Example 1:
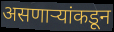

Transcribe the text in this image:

असणाऱ्यांकडून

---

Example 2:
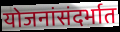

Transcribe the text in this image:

योजनांसंदर्भात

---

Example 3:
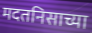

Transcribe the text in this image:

मदतनिसाच्या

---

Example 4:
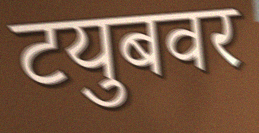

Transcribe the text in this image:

टयुबवर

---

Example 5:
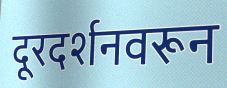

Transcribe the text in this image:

दूरदर्शनवरून